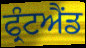
ਫ੍ਰੰਟਐਂਡ